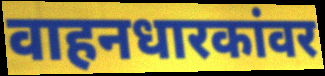
वाहनधारकांवर